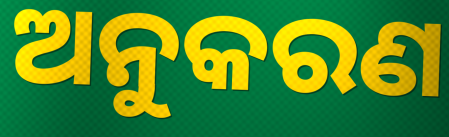
ଅନୁକରଣ